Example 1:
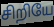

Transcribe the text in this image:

சிறியே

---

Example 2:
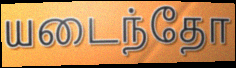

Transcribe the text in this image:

யடைந்தோ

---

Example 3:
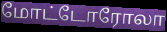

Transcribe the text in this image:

மோட்டோரோலா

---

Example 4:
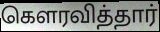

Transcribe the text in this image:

கௌரவித்தார்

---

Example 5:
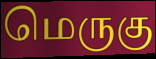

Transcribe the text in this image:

மெருகு